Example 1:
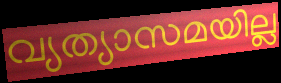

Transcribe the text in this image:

വ്യത്യാസമയില്ല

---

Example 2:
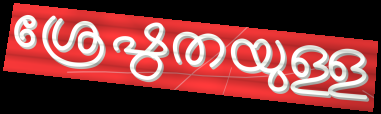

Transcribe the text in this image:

ശ്രേഷ്ഠതയുള്ള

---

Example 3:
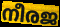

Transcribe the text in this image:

നീരജ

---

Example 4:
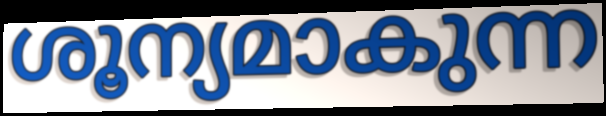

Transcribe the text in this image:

ശൂന്യമാകുന്ന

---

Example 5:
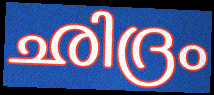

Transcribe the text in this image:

ഛിദ്രം